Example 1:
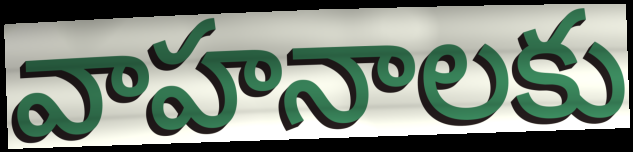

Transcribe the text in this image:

వాహనాలకు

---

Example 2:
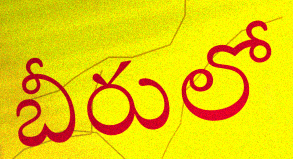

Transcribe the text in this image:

బీరులో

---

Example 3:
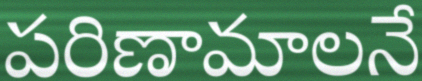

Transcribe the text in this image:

పరిణామాలనే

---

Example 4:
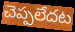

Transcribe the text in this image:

చెప్పలేదట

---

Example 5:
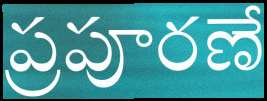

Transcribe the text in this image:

ప్రపూరణే